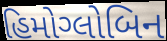
હિમોગ્લોબિન